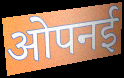
ओपनई